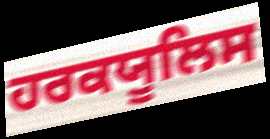
ਹਰਕਯੂਲਿਸ